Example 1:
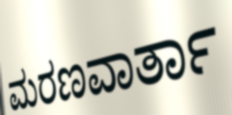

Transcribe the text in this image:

ಮರಣವಾರ್ತಾ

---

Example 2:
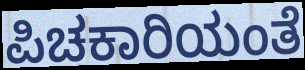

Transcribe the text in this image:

ಪಿಚಕಾರಿಯಂತೆ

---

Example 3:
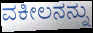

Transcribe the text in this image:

ವಕೀಲನನ್ನು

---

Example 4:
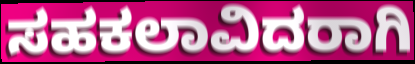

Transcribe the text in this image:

ಸಹಕಲಾವಿದರಾಗಿ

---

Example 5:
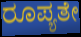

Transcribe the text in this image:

ರೂಪ್ಯತೇ